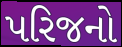
પરિજનો